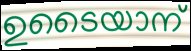
ഉടൈയാന്